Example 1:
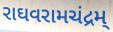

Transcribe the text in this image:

રાઘવરામચંદ્રમ્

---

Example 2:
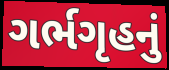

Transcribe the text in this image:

ગર્ભગૃહનું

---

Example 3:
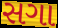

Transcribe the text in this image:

સગા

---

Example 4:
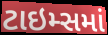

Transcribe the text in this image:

ટાઇમ્સમાં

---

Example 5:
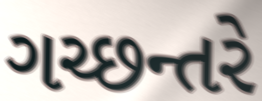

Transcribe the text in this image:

ગચ્છન્તરે